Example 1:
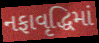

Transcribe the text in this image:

નફાવૃદ્ધિમાં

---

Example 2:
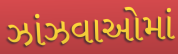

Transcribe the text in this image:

ઝાંઝવાઓમાં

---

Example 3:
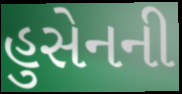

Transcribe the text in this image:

હુસેનની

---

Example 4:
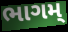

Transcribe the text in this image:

ભાગમ્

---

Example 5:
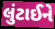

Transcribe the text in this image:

લુંટાઈને